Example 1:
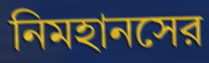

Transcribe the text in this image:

নিমহানসের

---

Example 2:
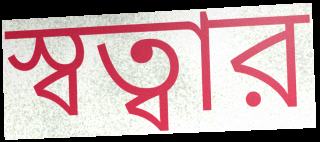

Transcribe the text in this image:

স্বত্বার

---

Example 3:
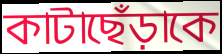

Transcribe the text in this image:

কাটাছেঁড়াকে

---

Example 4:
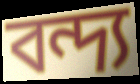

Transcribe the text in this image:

বন্দ্য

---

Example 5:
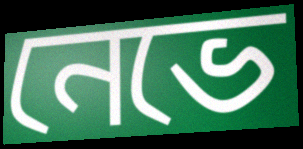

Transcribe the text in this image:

নেভে